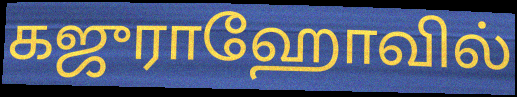
கஜுராஹோவில்